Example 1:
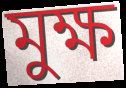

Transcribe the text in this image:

মুক্ষ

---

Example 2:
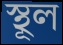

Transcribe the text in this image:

স্থূল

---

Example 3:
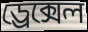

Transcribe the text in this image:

ড্রেক্সেল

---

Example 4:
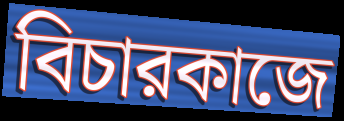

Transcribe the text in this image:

বিচারকাজে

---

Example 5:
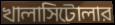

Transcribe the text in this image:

খালাসিটোলার